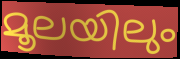
മൂലയിലും